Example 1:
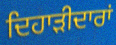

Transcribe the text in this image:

ਦਿਹਾੜੀਦਾਰਾਂ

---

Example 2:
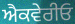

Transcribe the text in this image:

ਐਕਵੇਰੀਓ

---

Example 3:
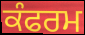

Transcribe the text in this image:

ਕੰਫਰਮ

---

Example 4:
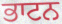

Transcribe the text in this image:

ਭਾਟਨ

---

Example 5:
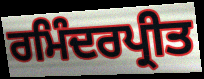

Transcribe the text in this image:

ਰਮਿੰਦਰਪ੍ਰੀਤ